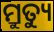
ମ୍ରୁତ୍ୟୁ